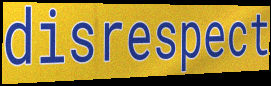
disrespect